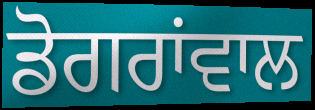
ਡੋਗਰਾਂਵਾਲ